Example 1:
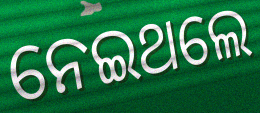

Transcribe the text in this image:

ନେଇଥଲେ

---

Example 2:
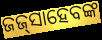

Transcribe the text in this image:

ଜଜ୍‍ସାହେବଙ୍କ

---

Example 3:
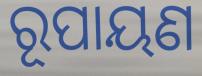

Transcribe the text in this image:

ରୂପାୟଣ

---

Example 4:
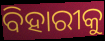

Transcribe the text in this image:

ବିହାରୀକୁ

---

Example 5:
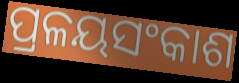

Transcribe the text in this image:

ପ୍ରଳୟସଂକାଶ